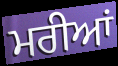
ਮਰੀਆਂ